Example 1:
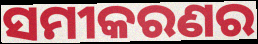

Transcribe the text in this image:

ସମୀକରଣର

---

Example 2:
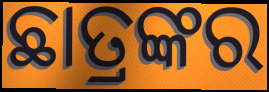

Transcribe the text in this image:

ଛାତ୍ରଙ୍କର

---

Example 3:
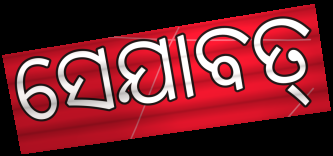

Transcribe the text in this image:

ସେଯାବତ୍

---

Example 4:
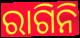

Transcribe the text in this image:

ରାଗିନି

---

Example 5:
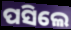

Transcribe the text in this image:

ପସିଲେ